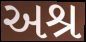
અશ્ર